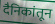
दैनिकांतून